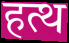
हत्थ